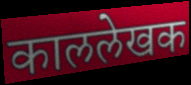
काललेखक